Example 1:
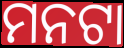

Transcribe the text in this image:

ମନଟା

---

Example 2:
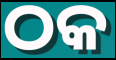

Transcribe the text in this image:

ଠକ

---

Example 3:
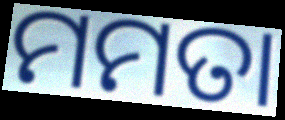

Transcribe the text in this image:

ମମତା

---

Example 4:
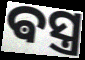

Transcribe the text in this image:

ଵସ୍ତ୍ର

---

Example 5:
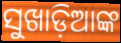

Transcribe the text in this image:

ସୁଖାଡ଼ିଆଙ୍କ